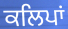
ਕਲਿਪਾਂ